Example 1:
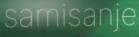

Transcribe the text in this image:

samisanje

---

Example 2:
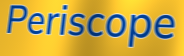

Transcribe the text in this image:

Periscope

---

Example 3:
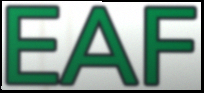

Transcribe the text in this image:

EAF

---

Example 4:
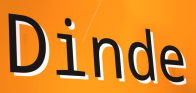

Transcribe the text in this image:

Dinde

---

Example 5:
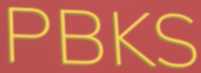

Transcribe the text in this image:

PBKS